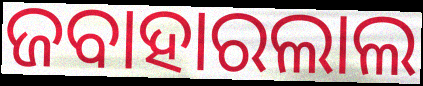
ଜବାହାରଲାଲ